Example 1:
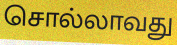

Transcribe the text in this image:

சொல்லாவது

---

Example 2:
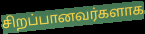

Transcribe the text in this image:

சிறப்பானவர்களாக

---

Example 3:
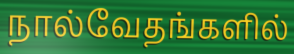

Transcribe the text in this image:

நால்வேதங்களில்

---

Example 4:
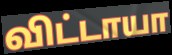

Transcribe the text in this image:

விட்டாயா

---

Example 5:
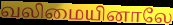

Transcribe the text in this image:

வலிமையினாலே